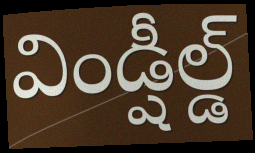
విండ్షీల్డ్